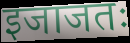
इजाजतः